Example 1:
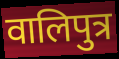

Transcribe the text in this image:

वालिपुत्र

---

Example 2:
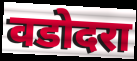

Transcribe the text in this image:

वडोदरा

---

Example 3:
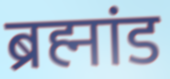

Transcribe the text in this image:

ब्रह्मांड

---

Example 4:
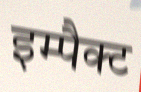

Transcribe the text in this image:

इम्पैक्ट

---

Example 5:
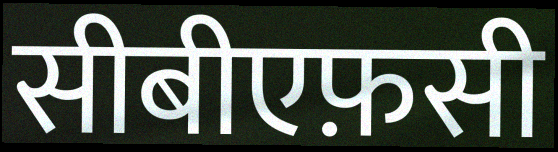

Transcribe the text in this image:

सीबीएफ़सी